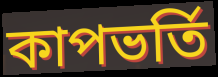
কাপভর্তি